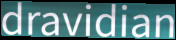
dravidian